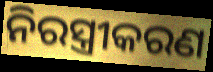
ନିରସ୍ତ୍ରୀକରଣ